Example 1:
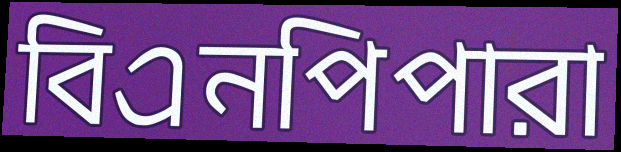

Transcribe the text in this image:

বিএনপিপারা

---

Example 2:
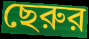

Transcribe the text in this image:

ছেরুর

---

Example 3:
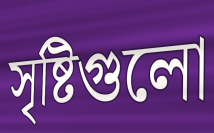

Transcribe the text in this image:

সৃষ্টিগুলো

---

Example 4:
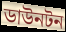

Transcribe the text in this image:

ডাউনটন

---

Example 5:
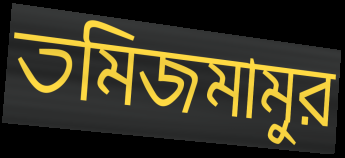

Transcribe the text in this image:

তমিজমামুর